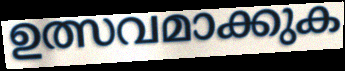
ഉത്സവമാക്കുക